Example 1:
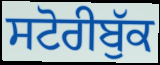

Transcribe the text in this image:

ਸਟੋਰੀਬੁੱਕ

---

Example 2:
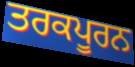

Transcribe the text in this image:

ਤਰਕਪੂਰਨ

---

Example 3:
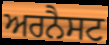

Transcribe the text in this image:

ਅਰਨੈਸਟ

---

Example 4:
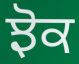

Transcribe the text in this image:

ਝੋਕ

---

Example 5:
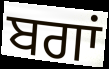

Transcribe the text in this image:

ਬਗਾਂ